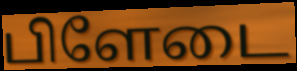
பிளேடை